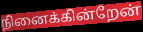
நினைக்கின்றேன்